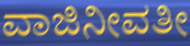
ವಾಜಿನೀವತೀ